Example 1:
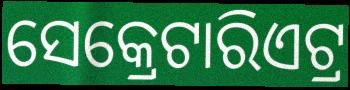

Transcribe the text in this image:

ସେକ୍ରେଟାରିଏଟ୍ର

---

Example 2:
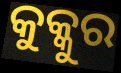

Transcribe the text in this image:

କୁକ୍କୁର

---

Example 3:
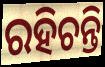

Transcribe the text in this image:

ରହିଚନ୍ତି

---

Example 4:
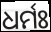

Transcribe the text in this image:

ଧର୍ମଃ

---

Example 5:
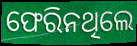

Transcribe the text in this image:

ଫେରିନଥିଲେ